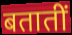
बतातीं